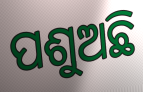
ପଶୁଅଛି